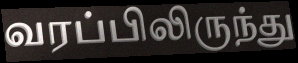
வரப்பிலிருந்து